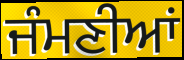
ਜੰਮਣੀਆਂ